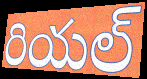
రియల్